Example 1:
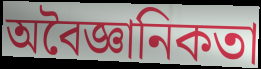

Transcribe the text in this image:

অবৈজ্ঞানিকতা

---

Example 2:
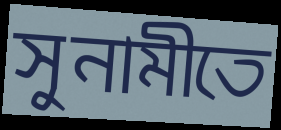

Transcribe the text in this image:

সুনামীতে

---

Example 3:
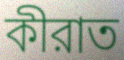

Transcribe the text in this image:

কীরাত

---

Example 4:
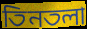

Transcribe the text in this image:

তিনতলা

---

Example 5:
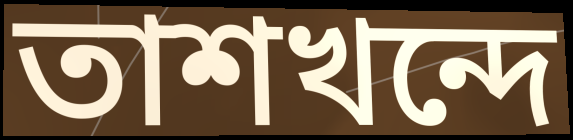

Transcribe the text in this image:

তাশখন্দে